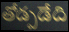
తోడ్పడేది